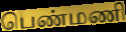
பெண்மணி